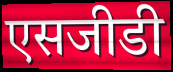
एसजीडी